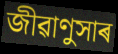
জীৱাণুসাৰ